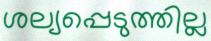
ശല്യപ്പെടുത്തില്ല